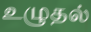
உழுதல்